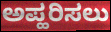
ಅಪ್ಹರಿಸಲು